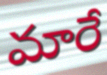
మారే